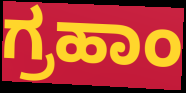
ಗ್ರಹಾಂ